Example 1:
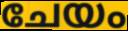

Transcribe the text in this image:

ചേയം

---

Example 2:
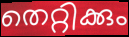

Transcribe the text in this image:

തെറ്റിക്കും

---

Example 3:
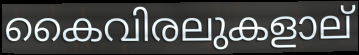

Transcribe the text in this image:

കൈവിരലുകളാല്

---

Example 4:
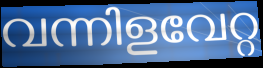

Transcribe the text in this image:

വന്നിളവേറ്റ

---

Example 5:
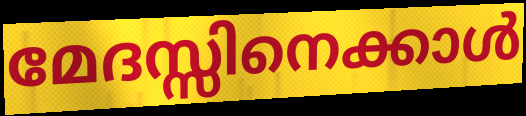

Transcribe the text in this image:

മേദസ്സിനെക്കാൾ